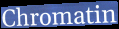
Chromatin